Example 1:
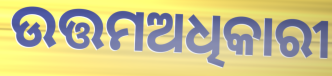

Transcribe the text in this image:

ଉତ୍ତମଅଧିକାରୀ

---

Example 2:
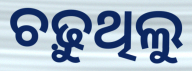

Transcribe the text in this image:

ଚଢ଼ୁଥିଲୁ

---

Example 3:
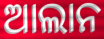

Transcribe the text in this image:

ଆଲାନ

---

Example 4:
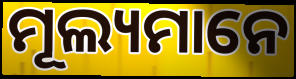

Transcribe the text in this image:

ମୂଲ୍ୟମାନେ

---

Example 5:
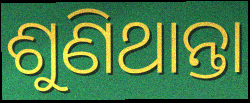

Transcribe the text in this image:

ଶୁଣିଥାନ୍ତା